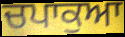
ਚਪਾਕੁਆ